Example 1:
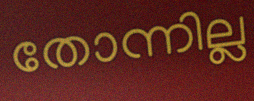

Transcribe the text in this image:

തോന്നില്ല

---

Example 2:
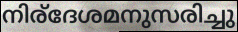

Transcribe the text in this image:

നിര്ദേശമനുസരിച്ചു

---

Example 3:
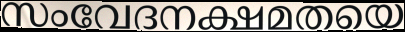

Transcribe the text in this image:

സംവേദനക്ഷമതയെ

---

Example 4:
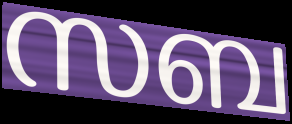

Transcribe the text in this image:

സബ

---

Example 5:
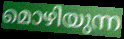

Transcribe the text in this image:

മൊഴിയുന്ന